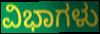
ವಿಭಾಗಳು